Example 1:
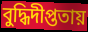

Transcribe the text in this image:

বুদ্ধিদীপ্ততায়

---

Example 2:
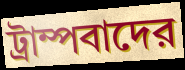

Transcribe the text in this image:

ট্রাম্পবাদের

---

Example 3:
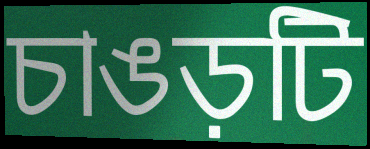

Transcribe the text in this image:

চাঙড়টি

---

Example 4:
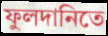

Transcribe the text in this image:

ফুলদানিতে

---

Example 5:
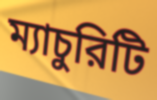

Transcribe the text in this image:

ম্যাচুরিটি